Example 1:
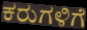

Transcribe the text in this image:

ಕರುಗಳಿಗೆ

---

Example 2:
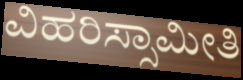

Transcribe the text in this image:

ವಿಹರಿಸ್ಸಾಮೀತಿ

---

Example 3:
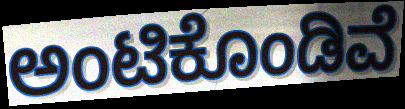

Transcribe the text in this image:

ಅಂಟಿಕೊಂಡಿವೆ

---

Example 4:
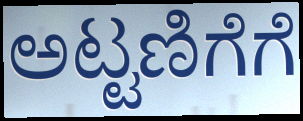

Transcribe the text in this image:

ಅಟ್ಟಣಿಗೆಗೆ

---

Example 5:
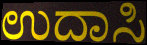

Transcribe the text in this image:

ಉದಾಸಿ